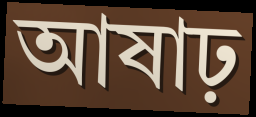
আষাঢ়